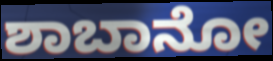
ಶಾಬಾನೋ